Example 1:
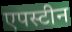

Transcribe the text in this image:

एपस्टीन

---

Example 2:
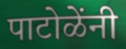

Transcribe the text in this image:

पाटोळेंनी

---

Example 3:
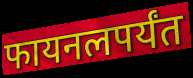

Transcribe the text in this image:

फायनलपर्यंत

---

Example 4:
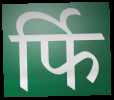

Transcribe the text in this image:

र्फि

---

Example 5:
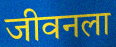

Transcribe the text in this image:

जीवनला